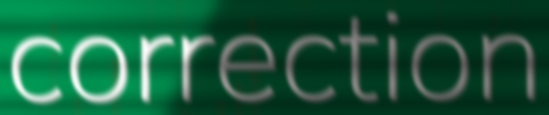
correction